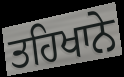
ਤਹਿਖਾਨੇ